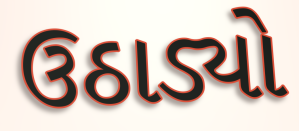
ઉઠાડ્યો